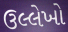
ઉલ્લેખો